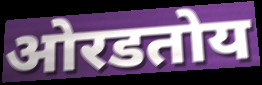
ओरडतोय